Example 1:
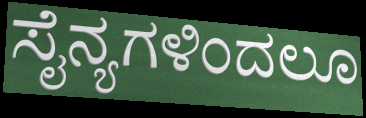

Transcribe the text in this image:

ಸೈನ್ಯಗಳಿಂದಲೂ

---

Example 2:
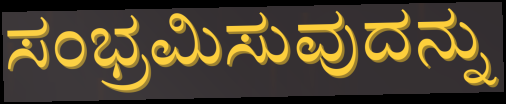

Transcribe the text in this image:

ಸಂಭ್ರಮಿಸುವುದನ್ನು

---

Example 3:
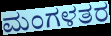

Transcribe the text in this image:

ಮಂಗಳತರ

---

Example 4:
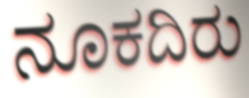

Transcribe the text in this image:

ನೂಕದಿರು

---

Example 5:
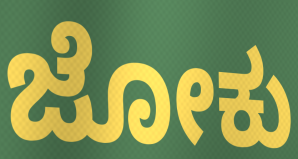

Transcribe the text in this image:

ಜೋಕು